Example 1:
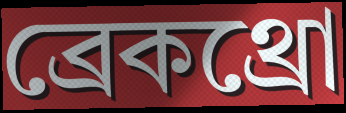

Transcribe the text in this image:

ব্রেকথ্রো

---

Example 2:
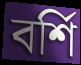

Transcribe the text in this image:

বর্শি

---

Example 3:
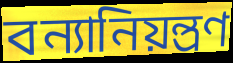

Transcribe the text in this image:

বন্যানিয়ন্ত্রণ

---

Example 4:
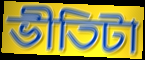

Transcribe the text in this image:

ভীতিটা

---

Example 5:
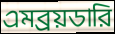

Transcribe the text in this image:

এমব্রয়ডারি